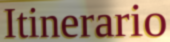
Itinerario